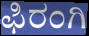
ಫಿರಂಗಿ